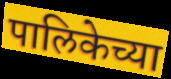
पालिकेच्या